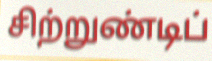
சிற்றுண்டிப்